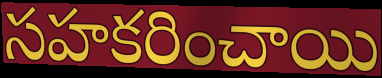
సహకరించాయి